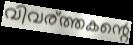
വിവര്ത്തകന്റെ